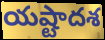
యష్టాదశ